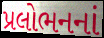
પ્રલોભનનાં